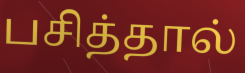
பசித்தால்